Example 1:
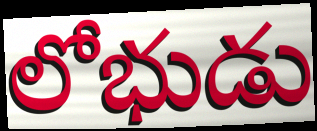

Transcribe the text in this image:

లోభుడు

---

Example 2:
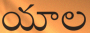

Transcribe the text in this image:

యాల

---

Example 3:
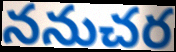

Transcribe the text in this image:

ననుచర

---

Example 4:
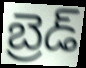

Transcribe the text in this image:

బ్రెడ్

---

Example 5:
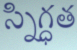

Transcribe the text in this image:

స్నిగ్ధత